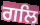
ਗਲਿ